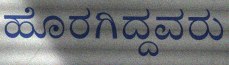
ಹೊರಗಿದ್ದವರು